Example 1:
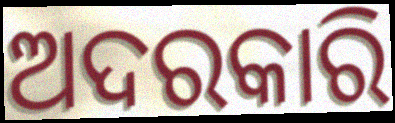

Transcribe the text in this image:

ଅଦରକାରି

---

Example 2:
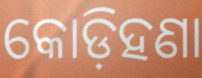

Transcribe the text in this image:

କୋଡ଼ିହଣା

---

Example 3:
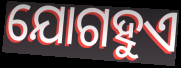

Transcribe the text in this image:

ଯୋଗହୁଏ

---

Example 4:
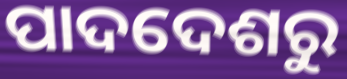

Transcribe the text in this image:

ପାଦଦେଶରୁ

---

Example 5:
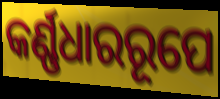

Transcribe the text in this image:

କର୍ଣ୍ଣଧାରରୂପେ